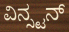
ವಿನ್ಸ್ಟನ್